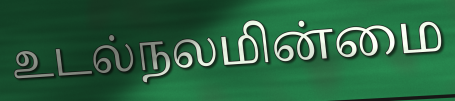
உடல்நலமின்மை